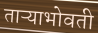
ताऱ्याभोवती